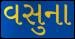
વસુના